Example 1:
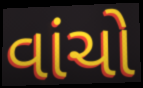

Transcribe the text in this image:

વાંચો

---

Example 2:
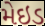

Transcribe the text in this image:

મેઇડ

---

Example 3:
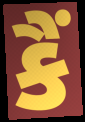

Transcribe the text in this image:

કૈં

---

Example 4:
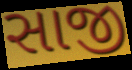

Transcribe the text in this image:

સાજી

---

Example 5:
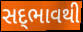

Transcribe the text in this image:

સદ્‍ભાવથી